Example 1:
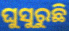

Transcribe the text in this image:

ଘୁସୁରୁଛି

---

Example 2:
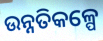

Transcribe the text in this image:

ଉନ୍ନତିକଳ୍ପେ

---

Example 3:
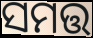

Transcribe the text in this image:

ସମତ୍ତ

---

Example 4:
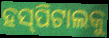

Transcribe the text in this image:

ହସ୍‌ପିଟାଲକୁ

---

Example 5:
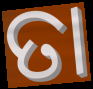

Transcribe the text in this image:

ତା